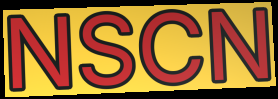
NSCN